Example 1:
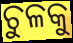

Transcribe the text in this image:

ଚୁଳକୁ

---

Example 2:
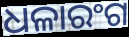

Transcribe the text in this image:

ଧଳାରଂଗ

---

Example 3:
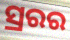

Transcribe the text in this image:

ସ୍ରରର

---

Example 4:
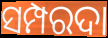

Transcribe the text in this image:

ସମ୍ପରଦା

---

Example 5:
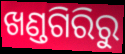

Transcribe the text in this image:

ଖଣ୍ଡଗିରିରୁ